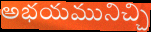
అభయమునిచ్చి